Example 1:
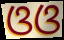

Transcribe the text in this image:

ଓଓ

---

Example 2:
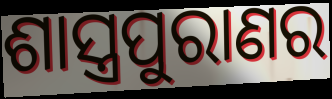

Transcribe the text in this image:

ଶାସ୍ତ୍ରପୁରାଣର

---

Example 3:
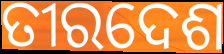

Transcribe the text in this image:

ତୀରଦେଶ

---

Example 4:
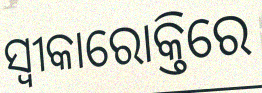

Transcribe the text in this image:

ସ୍ଵୀକାରୋକ୍ତିରେ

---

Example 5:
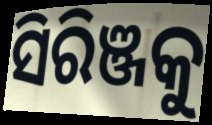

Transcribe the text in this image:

ସିରିଞ୍ଜକୁ